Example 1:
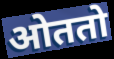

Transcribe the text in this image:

ओततो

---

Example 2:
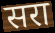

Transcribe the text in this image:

सरा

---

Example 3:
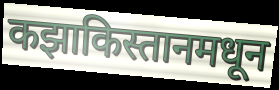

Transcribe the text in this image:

कझाकिस्तानमधून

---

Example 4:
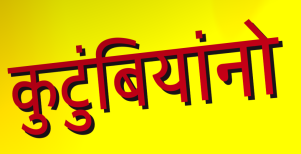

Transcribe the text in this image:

कुटुंबियांनो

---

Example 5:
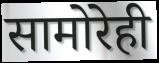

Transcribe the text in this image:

सामोरेही